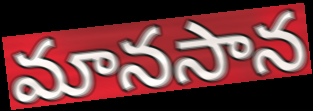
మానసాన